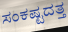
ಸಂಕಷ್ಟದತ್ತ